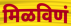
मिळविणं